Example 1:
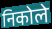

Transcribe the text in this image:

निकोले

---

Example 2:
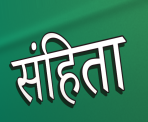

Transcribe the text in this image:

संहिता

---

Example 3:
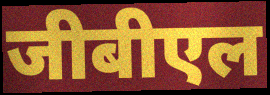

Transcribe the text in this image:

जीबीएल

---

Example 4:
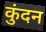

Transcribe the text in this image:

कुंदन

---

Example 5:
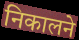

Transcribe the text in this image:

निकालने